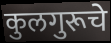
कुलगुरूचे